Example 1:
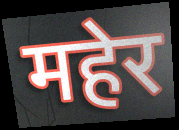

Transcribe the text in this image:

महेर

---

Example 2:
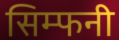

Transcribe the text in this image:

सिम्फनी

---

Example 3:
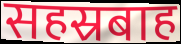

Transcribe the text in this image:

सहस्रबाह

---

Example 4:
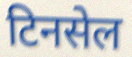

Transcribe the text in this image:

टिनसेल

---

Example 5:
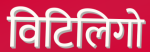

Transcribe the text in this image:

विटिलिगो